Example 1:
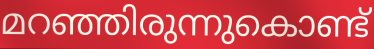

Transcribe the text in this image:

മറഞ്ഞിരുന്നുകൊണ്ട്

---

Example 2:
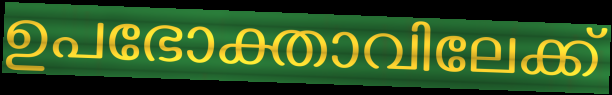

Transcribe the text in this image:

ഉപഭോക്താവിലേക്ക്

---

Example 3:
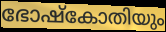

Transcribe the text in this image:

ഭോഷ്കോതിയും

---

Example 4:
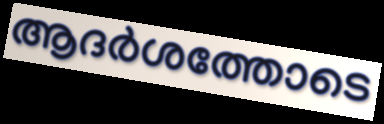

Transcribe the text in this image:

ആദർശത്തോടെ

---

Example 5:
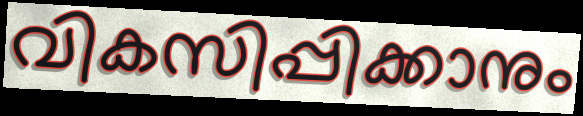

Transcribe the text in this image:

വികസിപ്പിക്കാനും